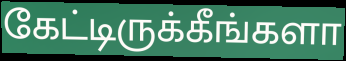
கேட்டிருக்கீங்களா